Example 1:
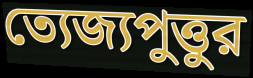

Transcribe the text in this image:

ত্যেজ্যপুত্তুর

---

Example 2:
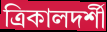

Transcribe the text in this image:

ত্রিকালদর্শী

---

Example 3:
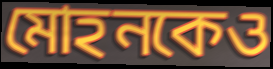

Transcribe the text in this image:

মোহনকেও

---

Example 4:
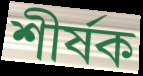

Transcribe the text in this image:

শীর্ষক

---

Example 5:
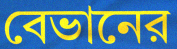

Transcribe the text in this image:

বেভানের